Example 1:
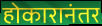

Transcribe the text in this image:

होकारानंतर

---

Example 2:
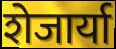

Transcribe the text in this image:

शेजार्या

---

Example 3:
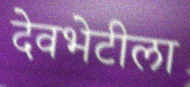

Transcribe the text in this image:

देवभेटीला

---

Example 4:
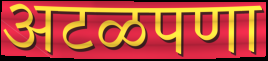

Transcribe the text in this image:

अटळपणा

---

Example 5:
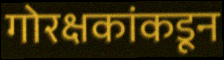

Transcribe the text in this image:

गोरक्षकांकडून